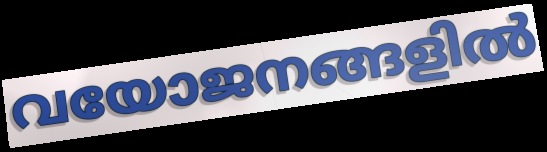
വയോജനങ്ങളിൽ